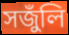
সজুঁলি